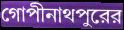
গোপীনাথপুরের